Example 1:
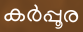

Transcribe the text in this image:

കർപ്പൂര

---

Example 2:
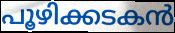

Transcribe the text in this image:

പൂഴിക്കടകൻ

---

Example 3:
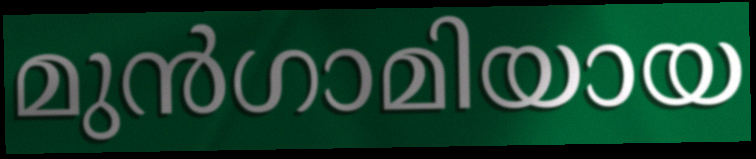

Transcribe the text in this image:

മുൻഗാമിയായ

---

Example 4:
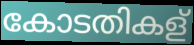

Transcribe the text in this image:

കോടതികള്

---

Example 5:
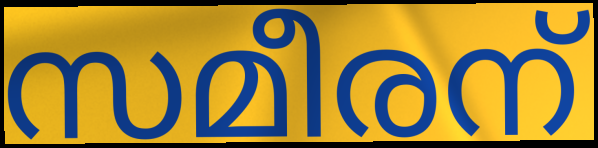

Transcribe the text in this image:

സമീരന്